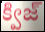
క్విజ్